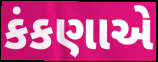
કંકણાએ